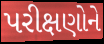
પરીક્ષણોને